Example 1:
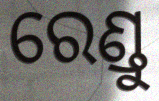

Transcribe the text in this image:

ରେଣ୍ଡୁ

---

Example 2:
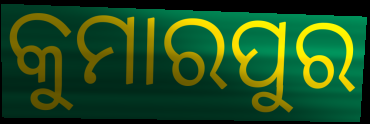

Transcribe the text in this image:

କୁମାରପୁର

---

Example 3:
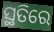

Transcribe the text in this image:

ସ୍ଥତିରେ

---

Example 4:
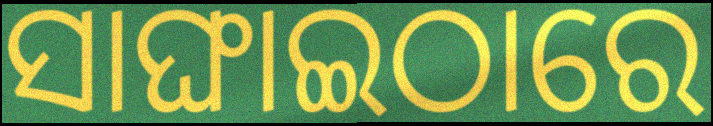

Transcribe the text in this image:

ସାଙ୍ଘାଇଠାରେ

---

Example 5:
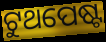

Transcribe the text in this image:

ଟୁଥପେଷ୍ଟ